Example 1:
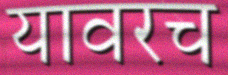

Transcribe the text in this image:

यावरच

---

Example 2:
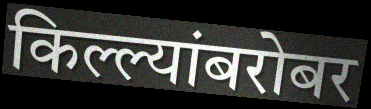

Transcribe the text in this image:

किल्ल्यांबरोबर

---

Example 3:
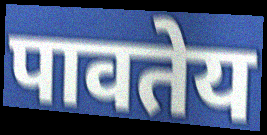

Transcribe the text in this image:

पावतेय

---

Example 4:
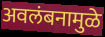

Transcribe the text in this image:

अवलंबनामुळे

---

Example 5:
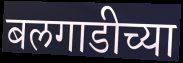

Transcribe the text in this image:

बलगाडीच्या